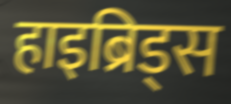
हाइब्रिड्स